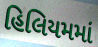
હિલિયમમાં